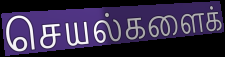
செயல்களைக்